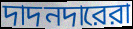
দাদনদারেরা